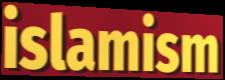
islamism